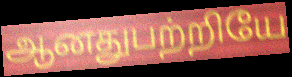
ஆனதுபற்றியே